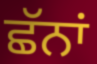
ਛੱਨਾਂ